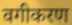
वगीकरण